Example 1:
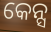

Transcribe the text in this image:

କେନ୍ସ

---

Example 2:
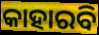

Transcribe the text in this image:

କାହାରବି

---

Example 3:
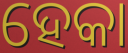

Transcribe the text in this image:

ହେକା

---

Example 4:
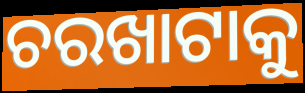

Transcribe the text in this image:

ଚରଖାଟାକୁ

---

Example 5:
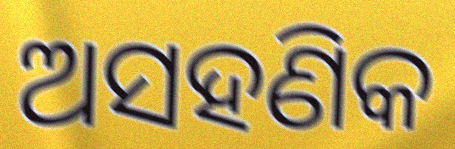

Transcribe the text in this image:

ଅସହଣିକ